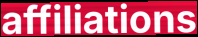
affiliations